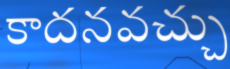
కాదనవచ్చు